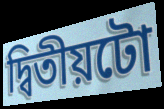
দ্বিতীয়টো